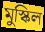
মুস্কিল